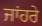
ਜਾਂਹਰੇ